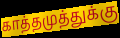
காத்தமுத்துக்கு